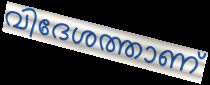
വിദേശത്താണ്